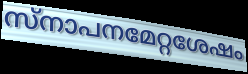
സ്നാപനമേറ്റശേഷം